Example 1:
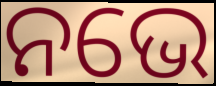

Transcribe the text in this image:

ନଭେ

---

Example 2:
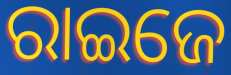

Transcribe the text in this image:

ରାଇଜେ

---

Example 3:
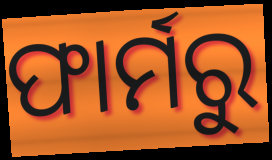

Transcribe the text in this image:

ଫାର୍ମରୁ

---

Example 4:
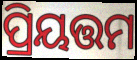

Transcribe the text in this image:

ପ୍ରିୟତ୍ତମ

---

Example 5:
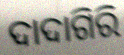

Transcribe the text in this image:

ଦାଦାଗିରି